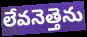
లేవనెత్తెను